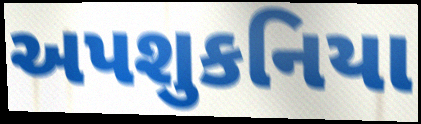
અપશુકનિયા